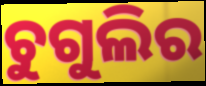
ଚୁଗୁଲିର